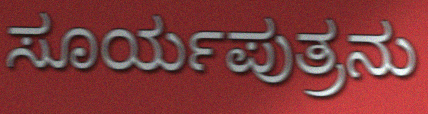
ಸೂರ್ಯಪುತ್ರನು